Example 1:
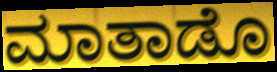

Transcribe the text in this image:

ಮಾತಾಡೊ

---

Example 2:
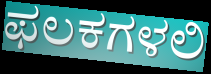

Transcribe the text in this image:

ಫಲಕಗಳಲಿ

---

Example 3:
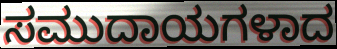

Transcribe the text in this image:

ಸಮುದಾಯಗಳಾದ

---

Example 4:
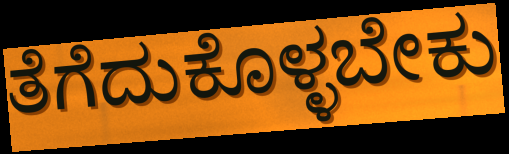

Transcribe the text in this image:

ತೆಗೆದುಕೊಳ್ಳಬೇಕು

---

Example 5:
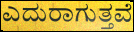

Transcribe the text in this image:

ಎದುರಾಗುತ್ತವೆ